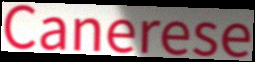
Canerese